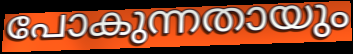
പോകുന്നതായും